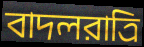
বাদলরাত্রি